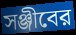
সঞ্জীবের